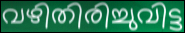
വഴിതിരിച്ചുവിട്ട